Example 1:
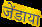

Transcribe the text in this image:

जेंडाया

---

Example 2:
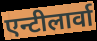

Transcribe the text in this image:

एन्टीलार्वा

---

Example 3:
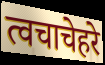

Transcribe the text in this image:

त्वचाचेहरे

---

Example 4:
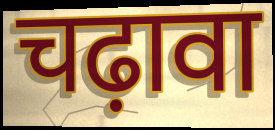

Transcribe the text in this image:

चढ़ावा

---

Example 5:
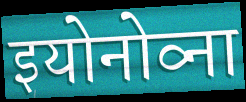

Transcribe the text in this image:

इयोनोव्ना